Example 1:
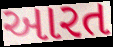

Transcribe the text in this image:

આરત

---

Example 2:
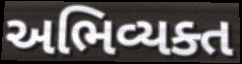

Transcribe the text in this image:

અભિવ્યક્ત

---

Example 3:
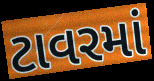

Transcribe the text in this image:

ટાવરમાં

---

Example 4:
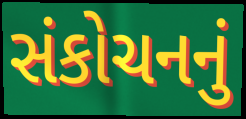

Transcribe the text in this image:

સંકોચનનું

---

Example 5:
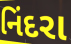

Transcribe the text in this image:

નિંદરા